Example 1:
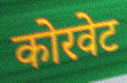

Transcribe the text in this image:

कोरवेट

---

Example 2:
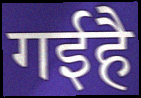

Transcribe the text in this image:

गईहै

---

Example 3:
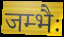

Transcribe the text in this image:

जम्भैः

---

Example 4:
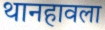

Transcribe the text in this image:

थानहावला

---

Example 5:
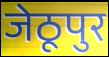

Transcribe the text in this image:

जेठूपुर